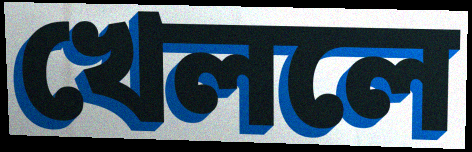
খেললে